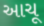
આચૂ